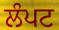
ਲੰਪਟ